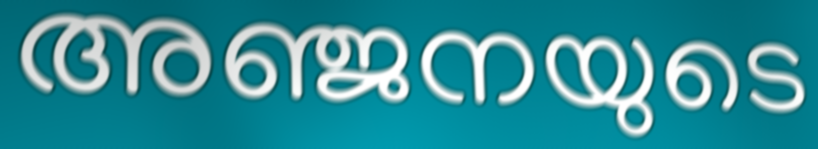
അഞ്ജനയുടെ